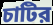
চাটির